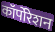
कॉर्पोरेशन